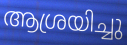
ആശ്രയിച്ചു